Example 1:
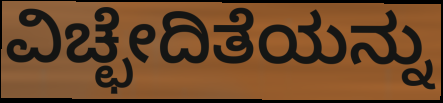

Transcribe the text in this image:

ವಿಚ್ಛೇದಿತೆಯನ್ನು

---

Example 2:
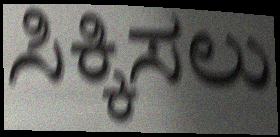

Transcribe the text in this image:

ಸಿಕ್ಕಿಸಲು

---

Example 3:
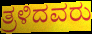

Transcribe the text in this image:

ತ್ರಳಿದವರು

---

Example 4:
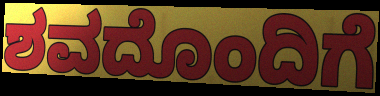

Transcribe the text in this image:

ಶವದೊಂದಿಗೆ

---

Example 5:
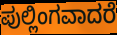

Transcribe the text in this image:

ಪುಲ್ಲಿಂಗವಾದರೆ